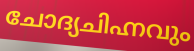
ചോദ്യചിഹ്നവും